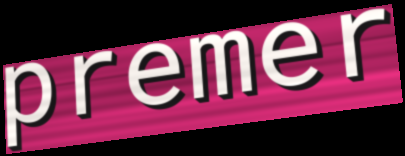
premer